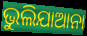
ଭୁଲିଯାଆନା